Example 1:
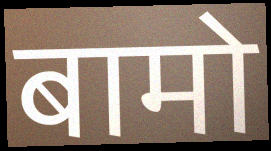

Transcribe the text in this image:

बामो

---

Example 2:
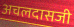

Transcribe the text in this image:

अचलदासजी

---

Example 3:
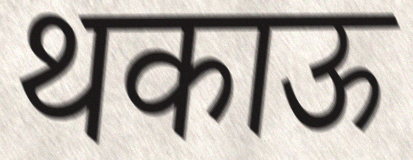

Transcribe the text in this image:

थकाऊ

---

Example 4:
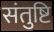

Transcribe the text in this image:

संतुष्टि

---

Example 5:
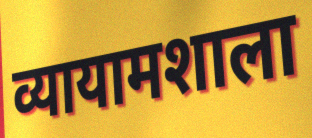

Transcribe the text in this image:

व्यायामशाला